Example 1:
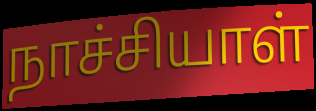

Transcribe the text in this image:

நாச்சியாள்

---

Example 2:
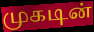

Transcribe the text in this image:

முகடின்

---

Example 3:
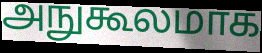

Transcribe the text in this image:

அநுகூலமாக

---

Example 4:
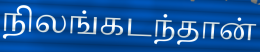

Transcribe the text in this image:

நிலங்கடந்தான்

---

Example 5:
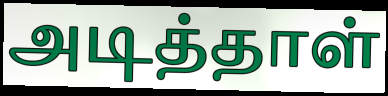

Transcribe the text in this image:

அடித்தாள்